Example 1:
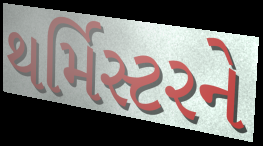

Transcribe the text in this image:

થર્મિસ્ટરને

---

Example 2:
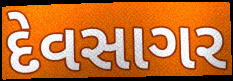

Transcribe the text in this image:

દેવસાગર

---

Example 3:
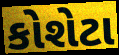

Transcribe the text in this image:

કોશેટા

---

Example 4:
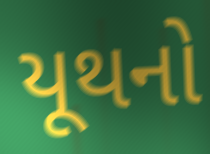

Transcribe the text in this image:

યૂથનો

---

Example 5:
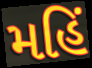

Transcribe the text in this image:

મહિં